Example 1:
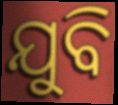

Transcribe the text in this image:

ଯୁବି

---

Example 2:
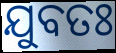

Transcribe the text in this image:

ଯୁବତଃ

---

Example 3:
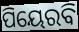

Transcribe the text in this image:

ପିୟେରବି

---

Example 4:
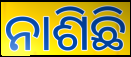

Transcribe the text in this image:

ନାଶିଛି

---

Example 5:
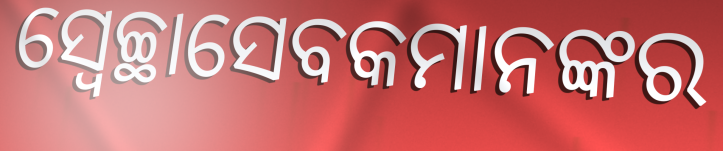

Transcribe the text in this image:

ସ୍ୱେଚ୍ଛାସେବକମାନଙ୍କର